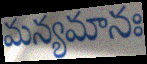
మన్యమానః